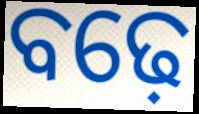
ବଢ଼େ